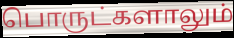
பொருட்களாலும்